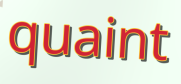
quaint